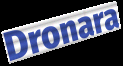
Dronara